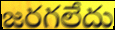
జరగలేదు